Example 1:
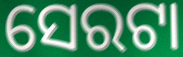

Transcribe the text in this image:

ସେରଟା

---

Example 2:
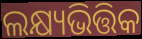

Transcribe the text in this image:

ଲକ୍ଷ୍ୟଭିତ୍ତିକ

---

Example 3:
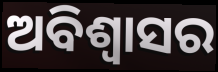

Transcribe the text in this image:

ଅବିଶ୍ବାସର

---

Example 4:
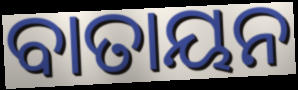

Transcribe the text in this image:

ବାତାୟନ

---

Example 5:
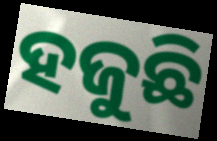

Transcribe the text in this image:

ହଜୁଛି